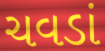
ચવડાં